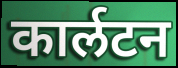
कार्लटन